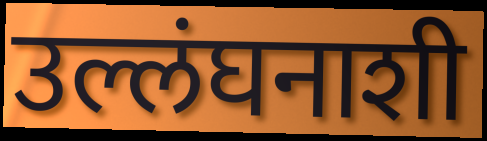
उल्लंघनाशी